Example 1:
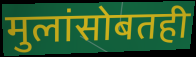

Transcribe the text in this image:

मुलांसोबतही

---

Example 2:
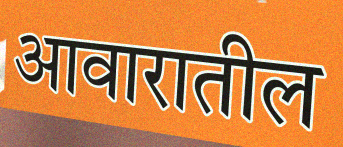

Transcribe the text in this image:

आवारातील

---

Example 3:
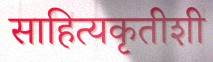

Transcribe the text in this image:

साहित्यकृतीशी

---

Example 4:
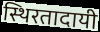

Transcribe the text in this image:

स्थिरतादायी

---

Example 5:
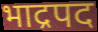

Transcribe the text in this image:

भाद्रपद